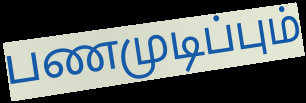
பணமுடிப்பும்